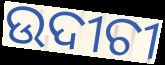
ଉଦୀଚୀ